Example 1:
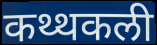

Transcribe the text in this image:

कथ्थकली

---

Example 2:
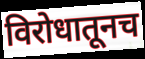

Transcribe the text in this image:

विरोधातूनच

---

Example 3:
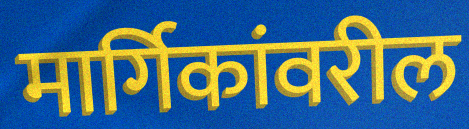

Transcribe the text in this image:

मार्गिकांवरील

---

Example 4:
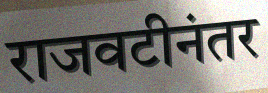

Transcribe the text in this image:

राजवटीनंतर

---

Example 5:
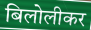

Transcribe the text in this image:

बिलोलीकर